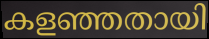
കളഞ്ഞതായി